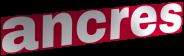
ancres